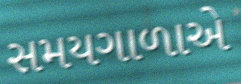
સમયગાળાએ